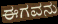
ಈಗವನು